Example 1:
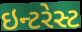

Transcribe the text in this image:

ઇન્ટરેસ્ટ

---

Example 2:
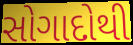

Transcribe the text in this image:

સોગાદોથી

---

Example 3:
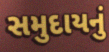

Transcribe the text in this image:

સમુદાયનું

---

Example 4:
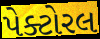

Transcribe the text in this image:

પેક્ટોરલ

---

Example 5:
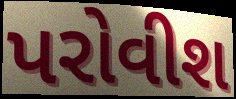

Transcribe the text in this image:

પરોવીશ